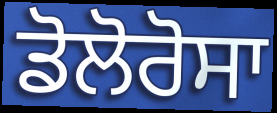
ਡੋਲੋਰੋਸਾ